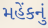
મહેંકનું